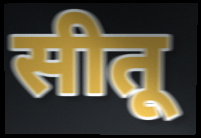
सीतू